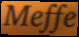
Meffe